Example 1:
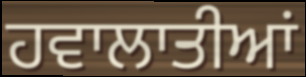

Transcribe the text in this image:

ਹਵਾਲਾਤੀਆਂ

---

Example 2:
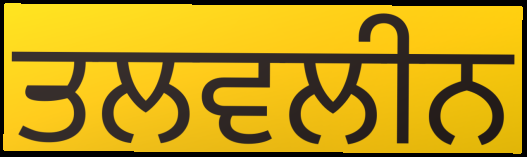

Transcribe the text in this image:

ਤਲਵਲੀਨ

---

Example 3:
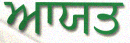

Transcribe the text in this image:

ਆਯਤ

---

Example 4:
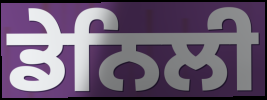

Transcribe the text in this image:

ਡੇਨਿਲੀ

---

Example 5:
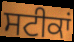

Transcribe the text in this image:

ਸਟੀਕਾਂ